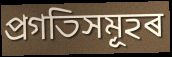
প্ৰগতিসমূহৰ